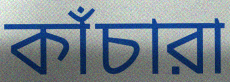
কাঁচারা